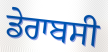
ਡੇਰਾਬਸੀ